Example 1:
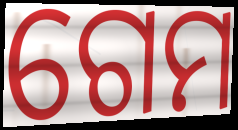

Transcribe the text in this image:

ଗେମ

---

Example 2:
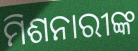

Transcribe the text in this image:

ମିଶନାରୀଙ୍କ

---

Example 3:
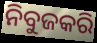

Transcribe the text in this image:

ନିବୁଜକରି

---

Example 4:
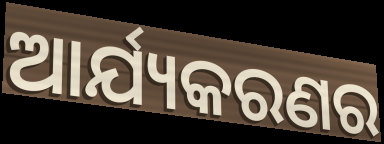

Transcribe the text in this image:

ଆର୍ଯ୍ୟକରଣର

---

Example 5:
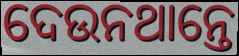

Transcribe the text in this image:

ଦେଉନଥାନ୍ତେ